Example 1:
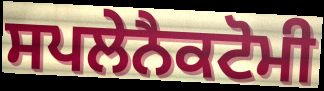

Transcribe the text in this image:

ਸਪਲੇਨੈਕਟੋਮੀ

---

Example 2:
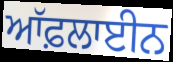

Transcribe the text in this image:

ਆੱਫ਼ਲਾਈਨ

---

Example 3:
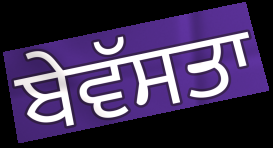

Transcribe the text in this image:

ਬੇਵੱਸਤਾ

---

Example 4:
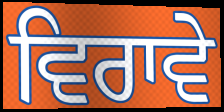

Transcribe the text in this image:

ਵਿਰਾਵੇ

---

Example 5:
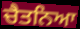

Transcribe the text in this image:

ਚੈਤਨਿਆ